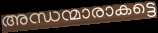
അന്ധന്മാരാകട്ടെ